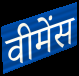
वीमेंस